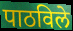
पाठविले